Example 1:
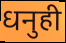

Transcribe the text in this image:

धनुही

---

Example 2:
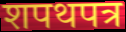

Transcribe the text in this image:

शपथपत्र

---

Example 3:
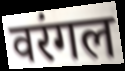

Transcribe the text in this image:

वरंगल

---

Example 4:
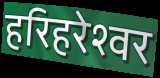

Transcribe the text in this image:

हरिहरेश्वर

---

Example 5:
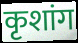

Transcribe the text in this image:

कृशांग